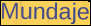
Mundaje